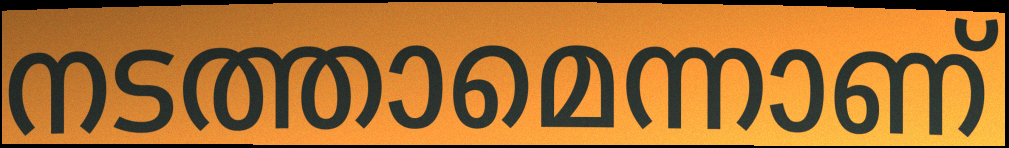
നടത്താമെന്നാണ്